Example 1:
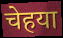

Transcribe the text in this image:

चेहया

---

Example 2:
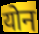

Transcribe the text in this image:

योन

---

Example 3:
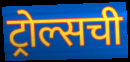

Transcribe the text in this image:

ट्रोल्सची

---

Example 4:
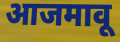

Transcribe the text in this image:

आजमावू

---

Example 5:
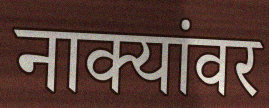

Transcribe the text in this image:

नाक्यांवर